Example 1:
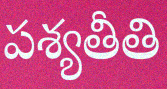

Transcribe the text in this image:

పశ్యతీతి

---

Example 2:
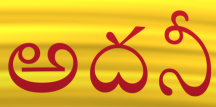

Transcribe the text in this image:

అదనీ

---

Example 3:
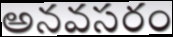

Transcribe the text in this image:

అనవసరం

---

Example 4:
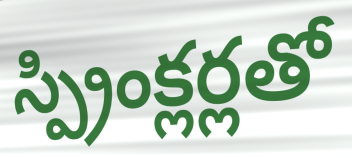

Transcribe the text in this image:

స్ప్రింక్లర్లతో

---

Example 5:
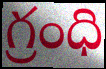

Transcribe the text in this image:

గ్రంధి